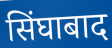
सिंघाबाद